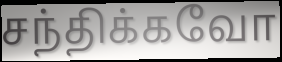
சந்திக்கவோ